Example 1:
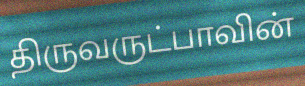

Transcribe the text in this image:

திருவருட்பாவின்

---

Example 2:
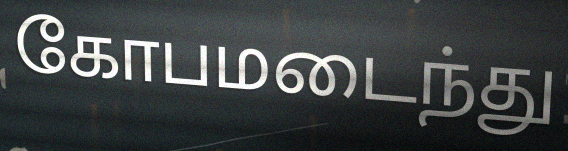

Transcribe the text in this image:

கோபமடைந்து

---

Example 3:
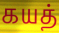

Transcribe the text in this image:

கயத்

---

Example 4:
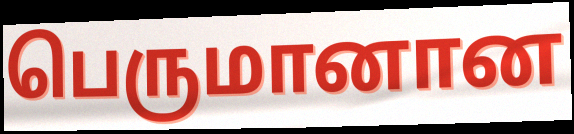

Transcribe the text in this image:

பெருமானான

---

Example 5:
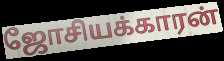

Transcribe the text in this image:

ஜோசியக்காரன்